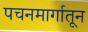
पचनमार्गातून